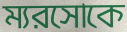
ম্যরসোকে